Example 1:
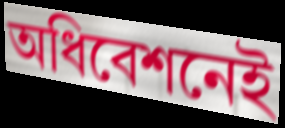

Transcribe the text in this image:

অধিবেশনেই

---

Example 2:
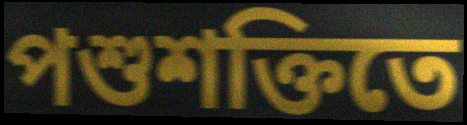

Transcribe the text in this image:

পশুশক্তিতে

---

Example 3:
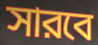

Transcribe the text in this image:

সারবে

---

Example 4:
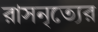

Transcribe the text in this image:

রাসনৃত্যের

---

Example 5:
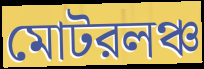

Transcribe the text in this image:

মোটরলঞ্চ